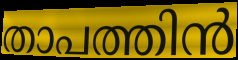
താപത്തിൻ